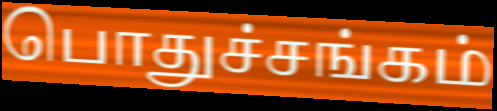
பொதுச்சங்கம்